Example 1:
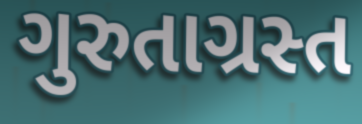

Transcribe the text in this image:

ગુરુતાગ્રસ્ત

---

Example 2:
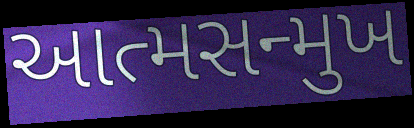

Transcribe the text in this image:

આત્મસન્મુખ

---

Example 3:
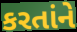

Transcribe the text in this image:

કરતાંને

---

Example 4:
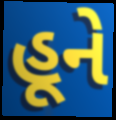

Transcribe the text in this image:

હૂને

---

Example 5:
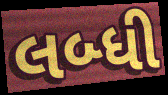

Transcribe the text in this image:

લબ્ધી